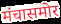
मंचासमोर